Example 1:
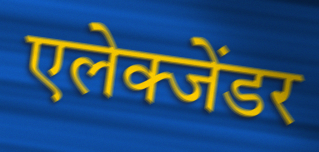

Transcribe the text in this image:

एलेक्‍जेंडर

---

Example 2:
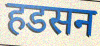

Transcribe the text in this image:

हडसन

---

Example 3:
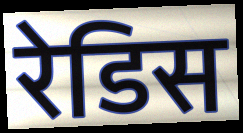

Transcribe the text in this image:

रेडिस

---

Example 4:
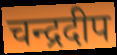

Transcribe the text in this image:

चन्द्रदीप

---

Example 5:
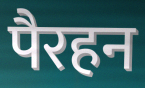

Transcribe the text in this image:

पैरहन